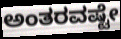
ಅಂತರವಷ್ಟೇ